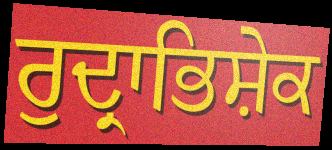
ਰੁਦ੍ਰਾਭਿਸ਼ੇਕ